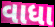
વાધા